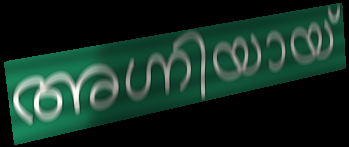
അഗ്നിയായ്